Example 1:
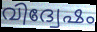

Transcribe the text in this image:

വിദ്വേഷം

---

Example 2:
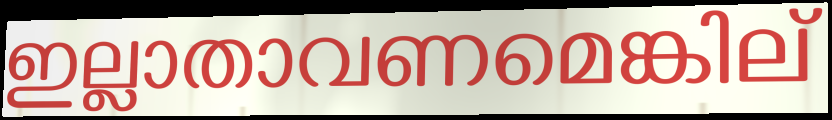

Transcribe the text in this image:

ഇല്ലാതാവണമെങ്കില്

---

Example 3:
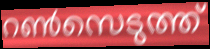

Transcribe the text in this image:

റൺസെടുത്ത്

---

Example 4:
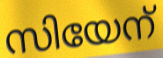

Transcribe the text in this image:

സിയേന്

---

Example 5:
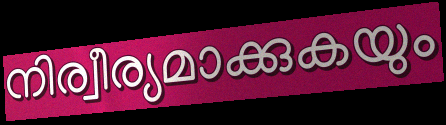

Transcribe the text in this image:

നിര്വീര്യമാക്കുകയും